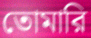
তোমারি